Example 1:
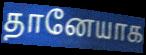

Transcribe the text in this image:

தானேயாக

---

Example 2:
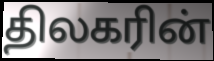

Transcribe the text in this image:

திலகரின்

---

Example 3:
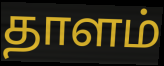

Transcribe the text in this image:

தாளம்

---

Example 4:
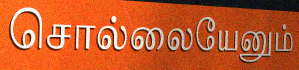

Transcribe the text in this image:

சொல்லையேனும்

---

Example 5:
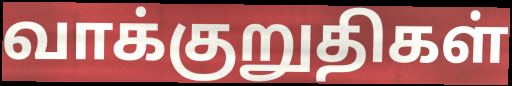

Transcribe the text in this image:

வாக்குறுதிகள்